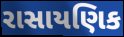
રાસાયણિક